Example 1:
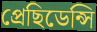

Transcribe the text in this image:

প্ৰেছিডেন্সি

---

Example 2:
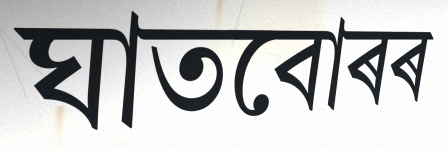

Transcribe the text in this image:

ঘাতবোৰৰ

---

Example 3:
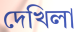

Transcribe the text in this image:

দেখিলা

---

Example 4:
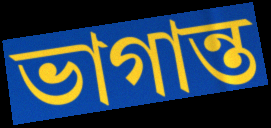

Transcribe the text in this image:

ভাগান্ত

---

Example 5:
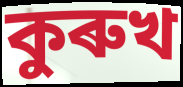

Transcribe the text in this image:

কুৰুখ